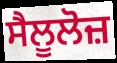
ਸੈਲੂਲੋਜ਼